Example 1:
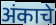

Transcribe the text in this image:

अंकाचे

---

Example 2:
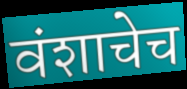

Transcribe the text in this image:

वंशाचेच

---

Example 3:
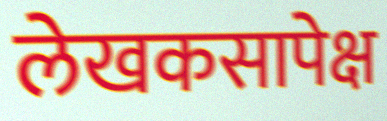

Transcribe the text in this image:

लेखकसापेक्ष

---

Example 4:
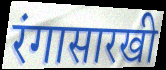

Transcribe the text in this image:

रंगासारखी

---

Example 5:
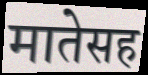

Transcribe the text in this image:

मातेसह